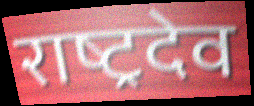
राष्ट्रदेव